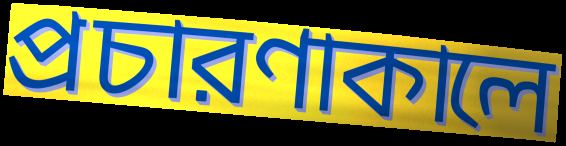
প্রচারণাকালে